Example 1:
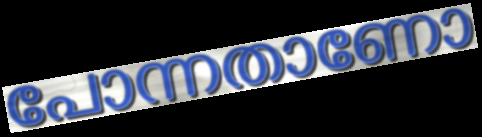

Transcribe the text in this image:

പോന്നതാണോ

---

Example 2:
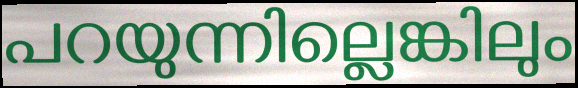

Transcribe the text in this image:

പറയുന്നില്ലെങ്കിലും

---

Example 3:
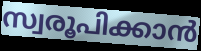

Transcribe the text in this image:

സ്വരൂപിക്കാൻ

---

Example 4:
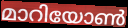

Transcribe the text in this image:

മാറിയോൺ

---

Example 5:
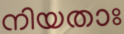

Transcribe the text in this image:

നിയതാഃ